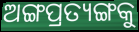
ଅଙ୍ଗପ୍ରତ୍ୟଙ୍ଗକୁ